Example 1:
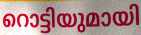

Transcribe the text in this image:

റൊട്ടിയുമായി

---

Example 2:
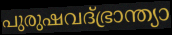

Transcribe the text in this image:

പുരുഷവദ്ഭ്രാന്ത്യാ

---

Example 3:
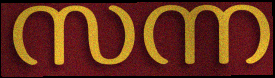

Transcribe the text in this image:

സന്ന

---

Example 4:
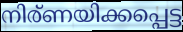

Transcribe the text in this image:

നിര്ണയിക്കപ്പെട്ട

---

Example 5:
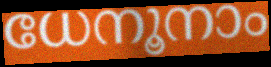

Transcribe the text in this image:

ധേനൂനാം